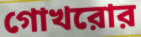
গোখরোর